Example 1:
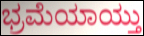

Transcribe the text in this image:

ಭ್ರಮೆಯಾಯ್ತು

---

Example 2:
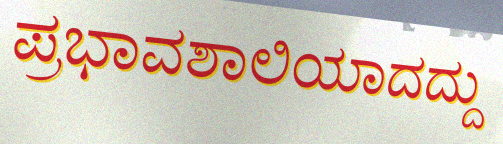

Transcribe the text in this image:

ಪ್ರಭಾವಶಾಲಿಯಾದದ್ದು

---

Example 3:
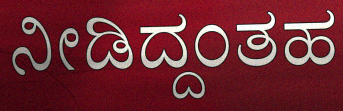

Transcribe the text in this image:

ನೀಡಿದ್ದಂತಹ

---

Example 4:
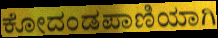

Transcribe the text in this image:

ಕೋದಂಡಪಾಣಿಯಾಗಿ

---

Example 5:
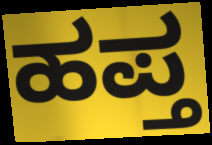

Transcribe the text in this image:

ಹಪ್ತ